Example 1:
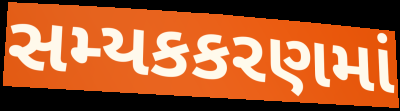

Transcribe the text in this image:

સમ્યકકરણમાં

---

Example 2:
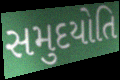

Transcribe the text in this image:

સમુદયોતિ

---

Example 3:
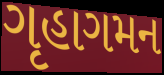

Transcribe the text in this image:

ગૃહાગમન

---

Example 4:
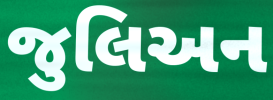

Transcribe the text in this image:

જુલિઅન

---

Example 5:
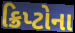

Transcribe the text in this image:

ક્રિપ્ટોના